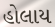
હોલાય